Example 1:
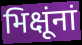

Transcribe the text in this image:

भिक्षूंनां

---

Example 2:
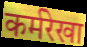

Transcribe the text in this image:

कर्मरेखा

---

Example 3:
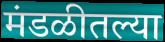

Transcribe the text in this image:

मंडळीतल्या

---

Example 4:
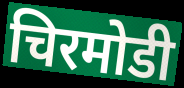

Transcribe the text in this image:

चिरमोडी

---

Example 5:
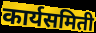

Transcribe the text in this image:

कार्यसमिती